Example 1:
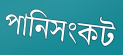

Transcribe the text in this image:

পানিসংকট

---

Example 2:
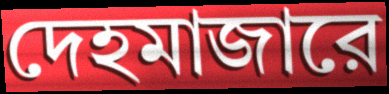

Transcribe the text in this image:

দেহমাজারে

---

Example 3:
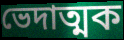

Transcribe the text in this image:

ভেদাত্মক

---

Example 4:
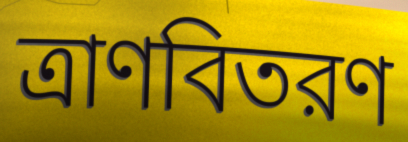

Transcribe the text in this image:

ত্রাণবিতরণ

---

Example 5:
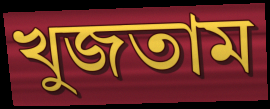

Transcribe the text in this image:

খুজতাম